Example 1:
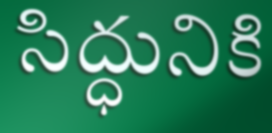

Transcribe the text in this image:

సిద్ధునికి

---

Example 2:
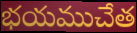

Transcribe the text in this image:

భయముచేత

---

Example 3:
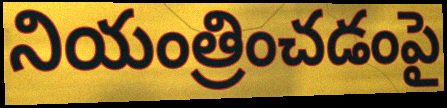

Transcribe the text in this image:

నియంత్రించడంపై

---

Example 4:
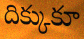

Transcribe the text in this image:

దిక్కుకూ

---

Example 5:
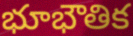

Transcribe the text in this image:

భూభౌతిక